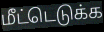
மீட்டெடுக்க